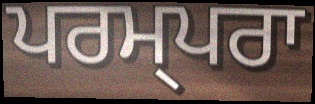
ਪਰਮ੍ਪਰਾ